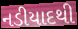
નડીયાદથી